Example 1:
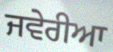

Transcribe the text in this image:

ਜਵੇਰੀਆ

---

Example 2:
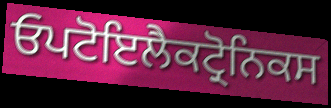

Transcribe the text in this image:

ਓਪਟੋਇਲੈਕਟ੍ਰੋਨਿਕਸ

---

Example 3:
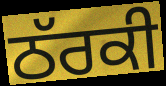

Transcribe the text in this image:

ਠੱਰਕੀ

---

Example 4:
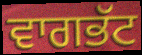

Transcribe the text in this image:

ਵਾਗਭੱਟ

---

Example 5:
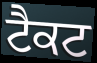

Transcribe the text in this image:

ਟੈਕਟ